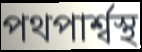
পথপার্শ্বস্থ